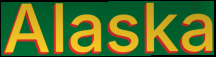
Alaska